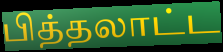
பித்தலாட்ட